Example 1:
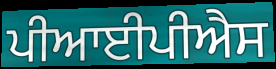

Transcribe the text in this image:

ਪੀਆਈਪੀਐਸ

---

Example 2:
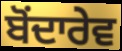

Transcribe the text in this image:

ਬੋਂਦਾਰੇਵ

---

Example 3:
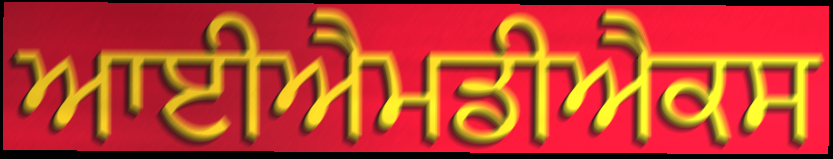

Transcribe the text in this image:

ਆਈਐਮਡੀਐਕਸ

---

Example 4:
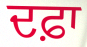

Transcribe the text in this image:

ਦਫ਼ਾ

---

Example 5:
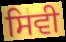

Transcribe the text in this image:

ਸਿਵੀ